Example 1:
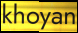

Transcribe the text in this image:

khoyan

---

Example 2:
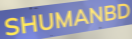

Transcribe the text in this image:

SHUMANBD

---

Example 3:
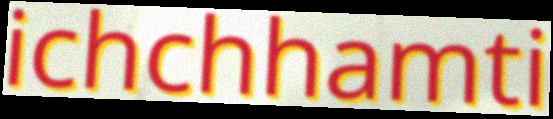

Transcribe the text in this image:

ichchhamti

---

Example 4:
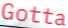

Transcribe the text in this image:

Gotta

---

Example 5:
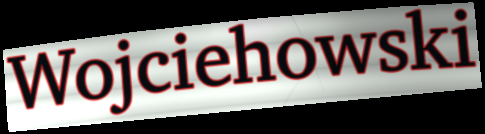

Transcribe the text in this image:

Wojciehowski